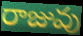
రాజువు